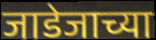
जाडेजाच्या